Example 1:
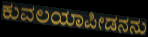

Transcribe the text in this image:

ಕುವಲಯಾಪೀಡನನು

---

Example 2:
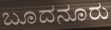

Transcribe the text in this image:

ಬೂದನೂರು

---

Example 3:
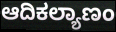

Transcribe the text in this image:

ಆದಿಕಲ್ಯಾಣಂ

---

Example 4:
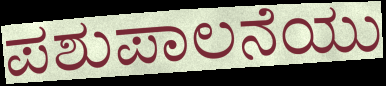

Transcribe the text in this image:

ಪಶುಪಾಲನೆಯು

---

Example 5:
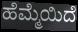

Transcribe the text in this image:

ಹೆಮ್ಮೆಯಿದೆ